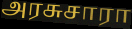
அரசுசாரா